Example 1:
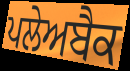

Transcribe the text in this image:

ਪਲੇਅਬੈਕ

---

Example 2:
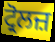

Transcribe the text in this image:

ਟ੍ਰੋਲਜ਼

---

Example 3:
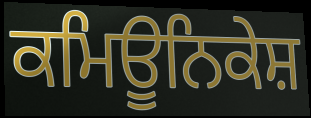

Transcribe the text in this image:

ਕਮਿਊਨਿਕੇਸ਼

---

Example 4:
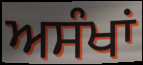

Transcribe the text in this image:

ਅਸੰਖਾਂ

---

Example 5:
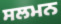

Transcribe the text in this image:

ਸਲਮਨ